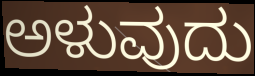
ಅಳುವುದು